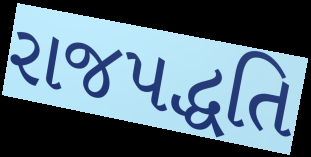
રાજપદ્ધતિ